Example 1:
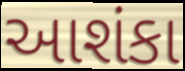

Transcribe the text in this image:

આશંકા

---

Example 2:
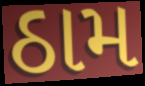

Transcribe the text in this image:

ઠામ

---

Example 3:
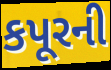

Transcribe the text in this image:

કપૂરની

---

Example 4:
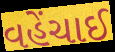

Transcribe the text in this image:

વહેંચાઈ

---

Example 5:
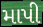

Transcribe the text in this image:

માપી